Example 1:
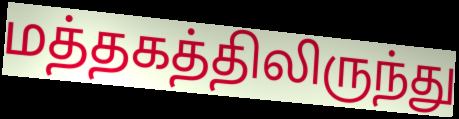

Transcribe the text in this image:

மத்தகத்திலிருந்து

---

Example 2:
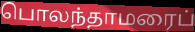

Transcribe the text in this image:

பொலந்தாமரைப்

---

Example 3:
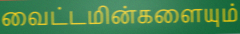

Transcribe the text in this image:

வைட்டமின்களையும்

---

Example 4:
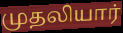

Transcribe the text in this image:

முதலியார்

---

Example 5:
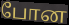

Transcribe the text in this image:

போன